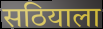
सठियाला